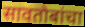
सावतोबांचा